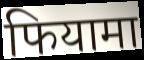
फियामा